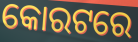
କୋରଟରେ